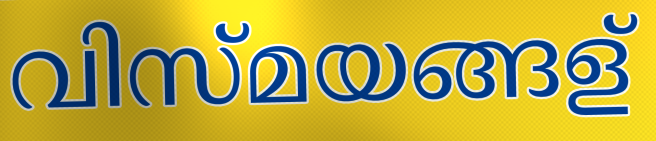
വിസ്മയങ്ങള്